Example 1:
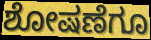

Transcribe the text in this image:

ಶೋಷಣೆಗೂ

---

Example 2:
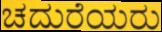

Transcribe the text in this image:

ಚದುರೆಯರು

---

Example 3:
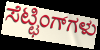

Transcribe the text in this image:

ಸೆಟ್ಟಿಂಗ್‌ಗಳು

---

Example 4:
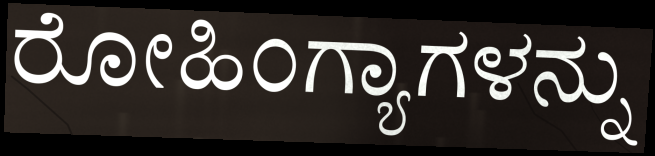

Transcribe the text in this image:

ರೋಹಿಂಗ್ಯಾಗಳನ್ನು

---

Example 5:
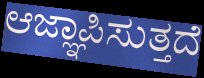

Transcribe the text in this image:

ಆಜ್ಞಾಪಿಸುತ್ತದೆ